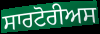
ਸਾਰਟੋਰੀਅਸ